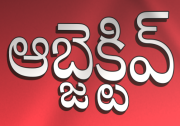
ఆబ్జెక్టివ్